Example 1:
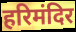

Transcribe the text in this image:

हरिमंदिर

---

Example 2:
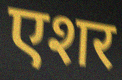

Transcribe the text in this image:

एशर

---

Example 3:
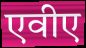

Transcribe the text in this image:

एवीए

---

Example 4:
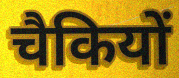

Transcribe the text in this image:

चैकियों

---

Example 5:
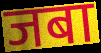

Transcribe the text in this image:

जबा